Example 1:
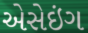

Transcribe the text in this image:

એસેઇંગ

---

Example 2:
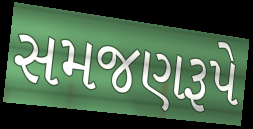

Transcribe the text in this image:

સમજણરૂપે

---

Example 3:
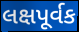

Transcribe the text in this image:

લક્ષપૂર્વક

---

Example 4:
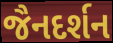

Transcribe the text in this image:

જૈનદર્શન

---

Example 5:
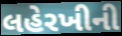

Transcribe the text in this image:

લહેરખીની